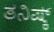
ತನಿಷ್ಕ್